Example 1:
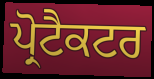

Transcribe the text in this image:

ਪ੍ਰੋਟੈਕਟਰ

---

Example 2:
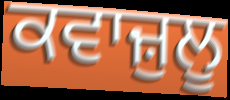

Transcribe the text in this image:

ਕਵਾਜ਼ੁਲੂ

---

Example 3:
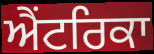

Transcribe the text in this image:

ਐਂਟਰਿਕਾ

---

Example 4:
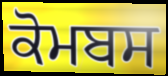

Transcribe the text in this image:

ਕੋਮਬਸ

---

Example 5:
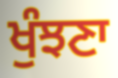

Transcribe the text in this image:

ਖੁੰਝਣਾ